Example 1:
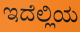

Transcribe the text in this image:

ಇದೆಲ್ಲಿಯ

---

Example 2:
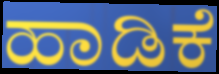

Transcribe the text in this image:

ಹಾಡಿಕೆ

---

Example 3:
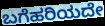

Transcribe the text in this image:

ಬಗೆಹರಿಯದೇ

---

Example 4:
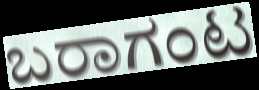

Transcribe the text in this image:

ಬರಾಗಂಟ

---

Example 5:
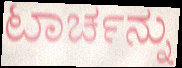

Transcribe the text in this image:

ಟಾರ್ಚನ್ನು